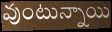
వుంటున్నాయి